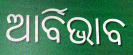
ଆର୍ବିଭାବ